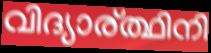
വിദ്യാര്ത്ഥിനി